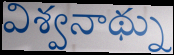
విశ్వనాథ్ను